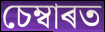
চেম্বাৰত